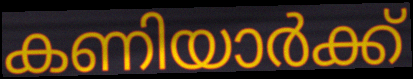
കണിയാർക്ക്